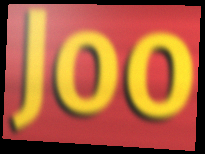
Joo